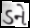
ડને